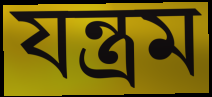
যন্ত্রম